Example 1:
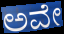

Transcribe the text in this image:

ಅವೇ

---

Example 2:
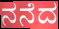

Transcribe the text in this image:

ನನೆದ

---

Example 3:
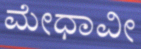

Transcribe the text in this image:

ಮೇಧಾವೀ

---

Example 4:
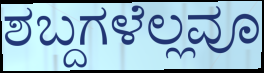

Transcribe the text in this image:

ಶಬ್ದಗಳೆಲ್ಲವೂ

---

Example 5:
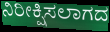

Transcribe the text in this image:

ನಿರೀಕ್ಷಿಸಲಾಗದ